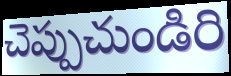
చెప్పుచుండిరి